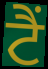
ਟੈੰ